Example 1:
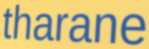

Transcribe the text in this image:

tharane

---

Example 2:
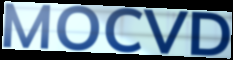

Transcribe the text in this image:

MOCVD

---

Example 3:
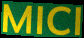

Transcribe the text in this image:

MICI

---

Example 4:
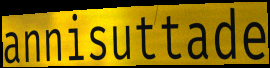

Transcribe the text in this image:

annisuttade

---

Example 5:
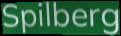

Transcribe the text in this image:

Spilberg